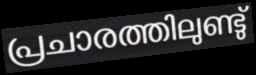
പ്രചാരത്തിലുണ്ടു്